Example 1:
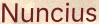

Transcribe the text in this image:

Nuncius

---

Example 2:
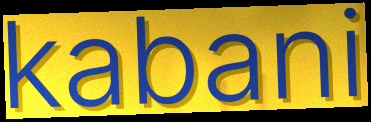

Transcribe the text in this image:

kabani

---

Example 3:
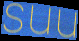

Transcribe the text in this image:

suu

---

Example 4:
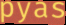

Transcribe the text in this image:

pyas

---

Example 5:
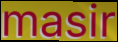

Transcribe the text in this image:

masir